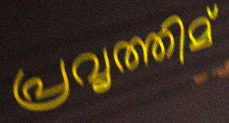
പ്രവൃത്തിമ്